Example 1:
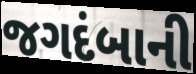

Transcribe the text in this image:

જગદંબાની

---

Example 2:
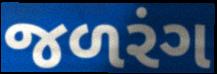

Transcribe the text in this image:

જળરંગ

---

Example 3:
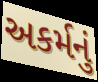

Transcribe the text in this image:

અકર્મનું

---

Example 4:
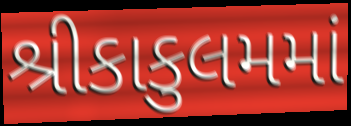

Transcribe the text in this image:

શ્રીકાકુલમમાં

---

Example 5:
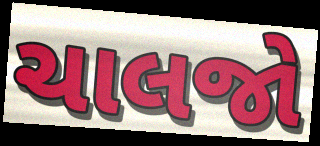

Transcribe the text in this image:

ચાલજો